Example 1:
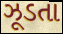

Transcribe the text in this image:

ઝૂડતા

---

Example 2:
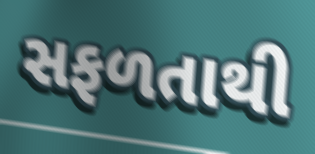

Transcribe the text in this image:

સફળતાથી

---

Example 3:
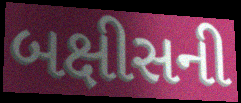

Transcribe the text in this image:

બક્ષીસની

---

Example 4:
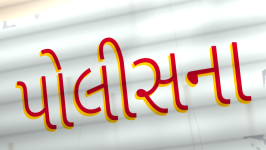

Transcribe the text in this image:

પોલીસના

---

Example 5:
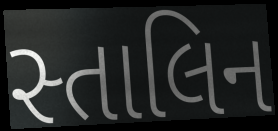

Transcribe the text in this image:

સ્તાલિન